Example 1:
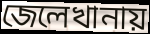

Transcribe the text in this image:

জেলেখানায়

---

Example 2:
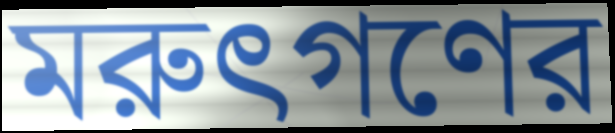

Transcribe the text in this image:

মরুৎগণের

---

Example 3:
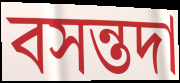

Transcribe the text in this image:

বসন্তদা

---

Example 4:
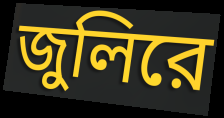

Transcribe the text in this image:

জুলিরে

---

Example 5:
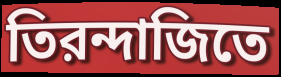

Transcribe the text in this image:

তিরন্দাজিতে